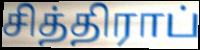
சித்திராப்